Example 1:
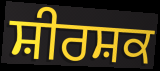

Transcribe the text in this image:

ਸ਼ੀਰਸ਼ਕ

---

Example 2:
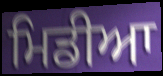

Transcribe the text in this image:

ਮਿਡੀਆ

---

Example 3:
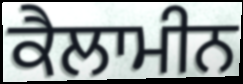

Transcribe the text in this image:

ਕੈਲਾਮੀਨ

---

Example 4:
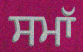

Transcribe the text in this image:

ਸਮਾੱ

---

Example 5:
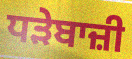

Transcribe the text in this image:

ਧੜੇਬਾਜ਼ੀ